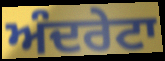
ਅੰਦਰੇਟਾ